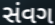
સંવગ